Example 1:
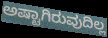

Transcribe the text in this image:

ಅಷ್ಟಾಗಿರುವುದಿಲ್ಲ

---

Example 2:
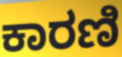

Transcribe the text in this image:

ಕಾರಣಿ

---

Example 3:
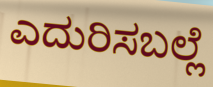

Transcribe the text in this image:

ಎದುರಿಸಬಲ್ಲೆ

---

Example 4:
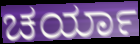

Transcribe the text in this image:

ಚರ್ಯಾ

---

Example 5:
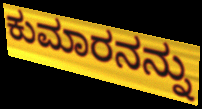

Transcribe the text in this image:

ಕುಮಾರನನ್ನು